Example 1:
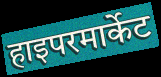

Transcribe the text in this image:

हाइपरमार्केट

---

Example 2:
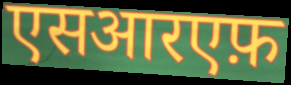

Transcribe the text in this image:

एसआरएफ़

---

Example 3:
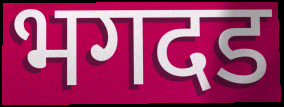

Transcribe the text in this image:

भगदड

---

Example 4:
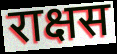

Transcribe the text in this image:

राक्षस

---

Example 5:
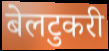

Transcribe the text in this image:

बेलटुकरी